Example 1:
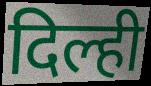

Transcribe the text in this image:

दिल्ही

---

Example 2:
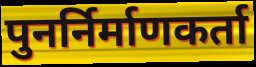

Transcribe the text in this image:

पुनर्निर्माणकर्ता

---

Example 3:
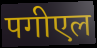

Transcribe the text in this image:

पगीएल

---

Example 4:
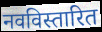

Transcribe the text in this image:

नवविस्तारित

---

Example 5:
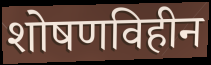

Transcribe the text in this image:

शोषणविहीन